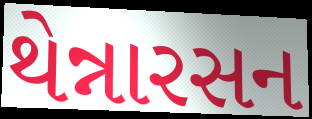
થેન્નારસન